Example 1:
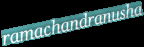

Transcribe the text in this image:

ramachandranusha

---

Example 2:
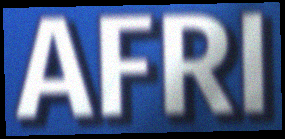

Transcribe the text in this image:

AFRI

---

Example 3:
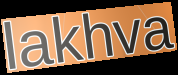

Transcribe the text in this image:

lakhva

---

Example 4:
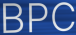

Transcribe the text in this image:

BPC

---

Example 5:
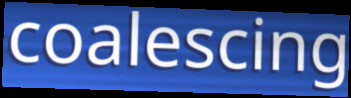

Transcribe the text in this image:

coalescing